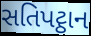
સતિપટ્ઠાન